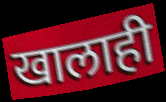
खालाही